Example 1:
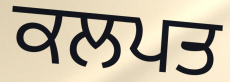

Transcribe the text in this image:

ਕਲਪਤ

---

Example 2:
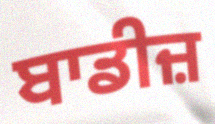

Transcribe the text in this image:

ਬਾਡੀਜ਼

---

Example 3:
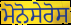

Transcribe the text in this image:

ਮੋਨੋਸੇਰੋਸ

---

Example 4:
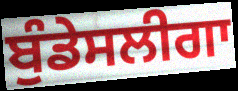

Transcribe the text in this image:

ਬੁੰਡੇਸਲੀਗਾ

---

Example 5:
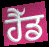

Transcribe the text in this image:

ਹੈੱਡ